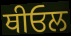
ਥੀਓਲ